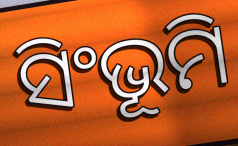
ସିଂଭୂମି